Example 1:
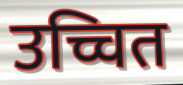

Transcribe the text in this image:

उच्चित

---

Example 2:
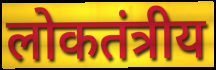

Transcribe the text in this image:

लोकतंत्रीय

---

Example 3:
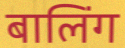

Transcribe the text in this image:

बालिंग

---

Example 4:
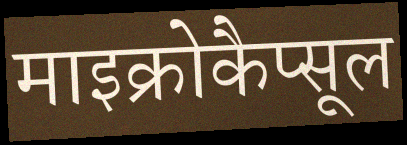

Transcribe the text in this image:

माइक्रोकैप्सूल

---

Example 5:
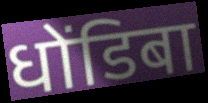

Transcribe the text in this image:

धोंडिबा